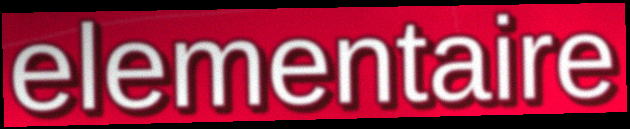
elementaire